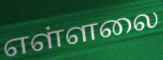
எள்ளலை